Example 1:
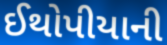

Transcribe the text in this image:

ઈથોપીયાની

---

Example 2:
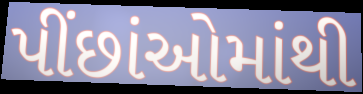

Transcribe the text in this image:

પીંછાંઓમાંથી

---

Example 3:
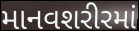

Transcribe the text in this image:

માનવશરીરમાં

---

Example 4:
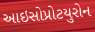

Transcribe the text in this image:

આઇસોપ્રોટયુરોન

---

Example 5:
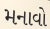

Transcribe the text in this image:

મનાવો